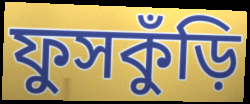
ফুসকুঁড়ি